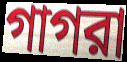
গাগরা